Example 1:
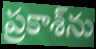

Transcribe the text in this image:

ప్రకాశ్‌ను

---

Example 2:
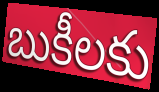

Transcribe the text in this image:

బుకీలకు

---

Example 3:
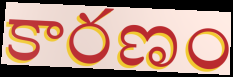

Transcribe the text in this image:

కారణం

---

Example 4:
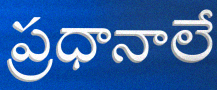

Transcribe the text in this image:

ప్రధానాలే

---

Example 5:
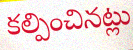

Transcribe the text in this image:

కల్పించినట్లు